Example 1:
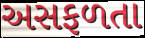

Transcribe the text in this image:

અસફળતા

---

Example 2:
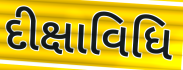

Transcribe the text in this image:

દીક્ષાવિધિ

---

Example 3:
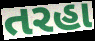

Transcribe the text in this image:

તરહા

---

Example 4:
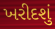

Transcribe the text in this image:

ખરીદશું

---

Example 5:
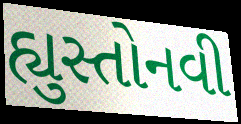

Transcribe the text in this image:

હ્યુસ્તોનવી